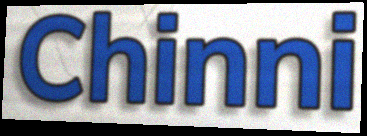
Chinni